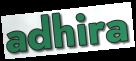
adhira